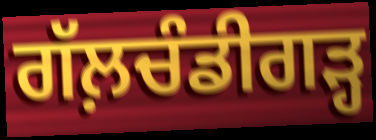
ਗੱਲ਼ਚੰਡੀਗੜ੍ਹ